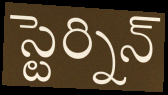
స్టెర్నిన్